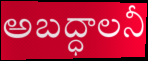
అబద్ధాలనీ